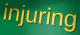
injuring